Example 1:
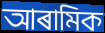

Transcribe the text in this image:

আৰামিক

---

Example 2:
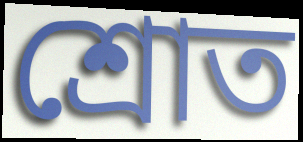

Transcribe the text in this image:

শ্ৰোত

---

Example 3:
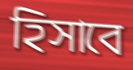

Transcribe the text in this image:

হিসাবে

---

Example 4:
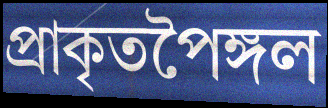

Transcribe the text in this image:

প্ৰাকৃতপৈঙ্গল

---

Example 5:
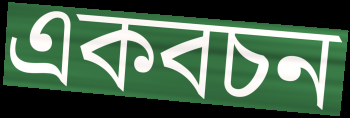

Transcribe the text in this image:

একবচন